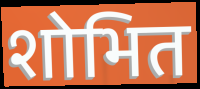
शोभित